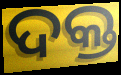
ଦକ୍ତ